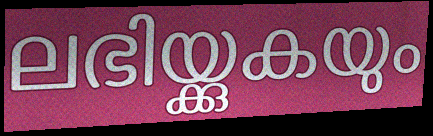
ലഭിയ്ക്കുകയും